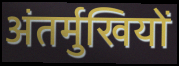
अंतर्मुखियों